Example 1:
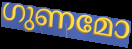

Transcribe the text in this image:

ഗുണമോ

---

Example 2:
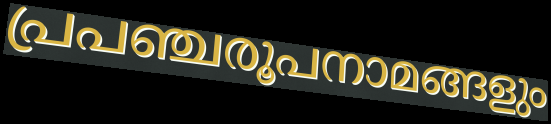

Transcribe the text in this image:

പ്രപഞ്ചരൂപനാമങ്ങളും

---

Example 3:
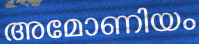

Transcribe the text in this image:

അമോണിയം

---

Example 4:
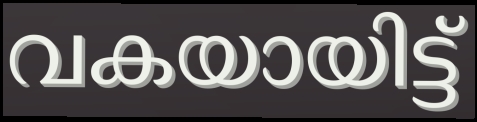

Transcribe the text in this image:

വകയായിട്ട്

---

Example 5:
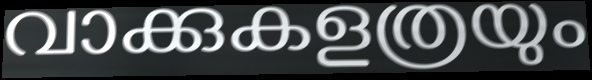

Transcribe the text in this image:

വാക്കുകളത്രയും